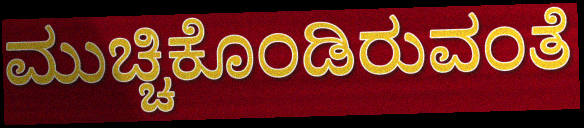
ಮುಚ್ಚಿಕೊಂಡಿರುವಂತೆ